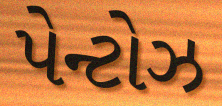
પેન્ટોઝ